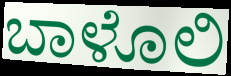
ಬಾಳೊಲಿ